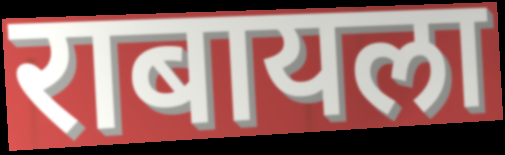
राबायला